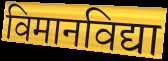
विमानविद्या